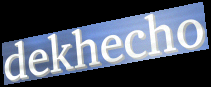
dekhecho